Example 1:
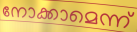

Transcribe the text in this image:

നോക്കാമെന്ന്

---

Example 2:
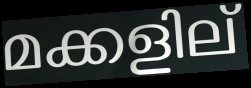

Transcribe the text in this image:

മക്കളില്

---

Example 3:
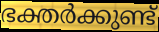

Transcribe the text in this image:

ഭക്തർക്കുണ്ട്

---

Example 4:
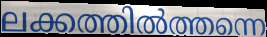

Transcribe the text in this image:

ലക്കത്തിൽത്തന്നെ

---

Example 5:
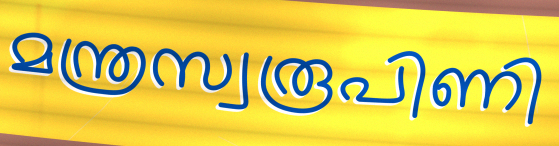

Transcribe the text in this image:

മന്ത്രസ്വരൂപിണി